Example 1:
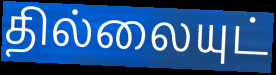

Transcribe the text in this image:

தில்லையுட்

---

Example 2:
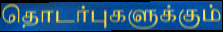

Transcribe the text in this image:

தொடர்புகளுக்கும்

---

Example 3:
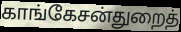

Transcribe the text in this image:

காங்கேசன்துறைத்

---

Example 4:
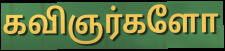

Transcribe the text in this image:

கவிஞர்களோ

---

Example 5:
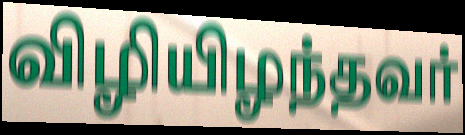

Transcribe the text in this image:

விழியிழந்தவர்